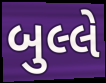
બુલ્લે